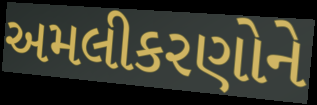
અમલીકરણોને